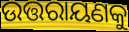
ଉତ୍ତରାୟଣକୁ